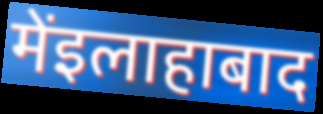
मेंइलाहाबाद